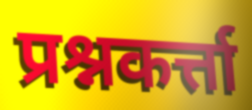
प्रश्नकर्त्ता